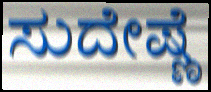
ಸುದೇಷ್ಣೆ